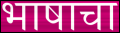
भाषाचा